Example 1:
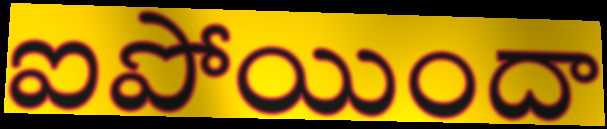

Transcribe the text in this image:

ఐపోయిందా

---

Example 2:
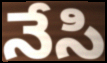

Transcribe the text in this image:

నేసి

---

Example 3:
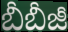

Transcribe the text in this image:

బీబీజీ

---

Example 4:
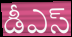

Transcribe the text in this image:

డీఎస్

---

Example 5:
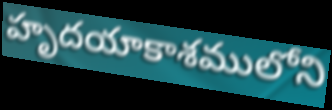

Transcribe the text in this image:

హృదయాకాశములోని